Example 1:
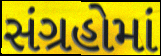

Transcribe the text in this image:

સંગ્રહોમાં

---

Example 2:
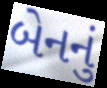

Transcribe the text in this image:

બેનનું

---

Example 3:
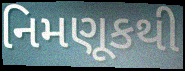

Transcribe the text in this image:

નિમણૂકથી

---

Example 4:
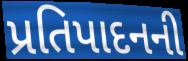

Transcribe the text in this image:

પ્રતિપાદનની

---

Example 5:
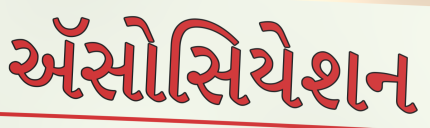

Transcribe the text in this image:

ઍસોસિયેશન